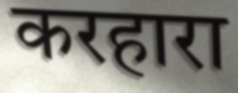
करहारा